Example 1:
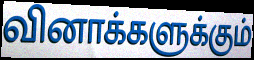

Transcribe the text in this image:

வினாக்களுக்கும்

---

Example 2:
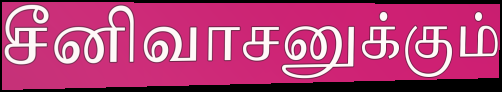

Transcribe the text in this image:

சீனிவாசனுக்கும்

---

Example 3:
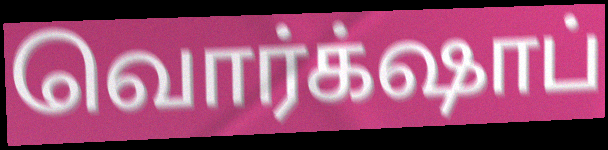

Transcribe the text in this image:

வொர்க்‌ஷாப்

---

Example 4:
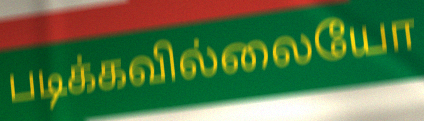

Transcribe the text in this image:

படிக்கவில்லையோ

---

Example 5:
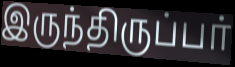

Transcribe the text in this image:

இருந்திருப்பர்